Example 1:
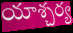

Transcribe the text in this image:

యాశ్చర్య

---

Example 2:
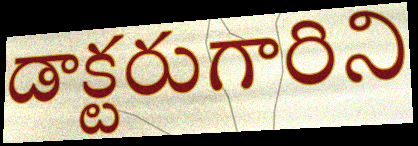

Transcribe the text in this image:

డాక్టరుగారిని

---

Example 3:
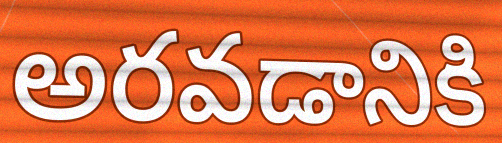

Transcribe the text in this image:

అరవడానికి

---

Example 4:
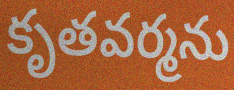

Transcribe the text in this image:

కృతవర్మను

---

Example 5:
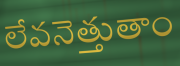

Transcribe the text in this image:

లేవనెత్తుతాం